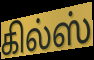
கில்ஸ்